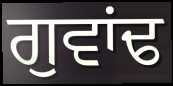
ਗੁਵਾਂਢ